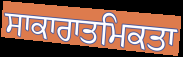
ਸਾਕਾਰਾਤਮਿਕਤਾ